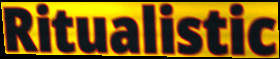
Ritualistic